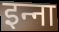
इन्ना